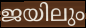
ജയിലും